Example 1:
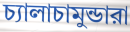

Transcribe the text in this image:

চ্যালাচামুন্ডারা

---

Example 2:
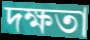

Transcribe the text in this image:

দক্ষতা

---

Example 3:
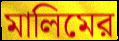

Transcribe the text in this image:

মালিমের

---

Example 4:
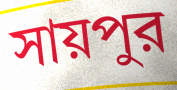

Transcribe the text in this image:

সায়পুর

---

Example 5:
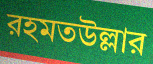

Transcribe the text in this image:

রহমতউল্লার